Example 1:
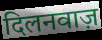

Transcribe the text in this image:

दिलनवाज़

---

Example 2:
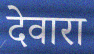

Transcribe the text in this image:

देवारा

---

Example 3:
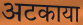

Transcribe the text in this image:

अटकाया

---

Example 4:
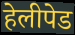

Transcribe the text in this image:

हेलीपेड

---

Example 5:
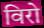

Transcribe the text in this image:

विरो